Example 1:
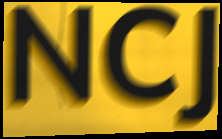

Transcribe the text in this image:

NCJ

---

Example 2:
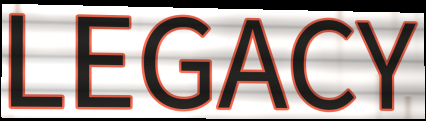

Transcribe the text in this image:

LEGACY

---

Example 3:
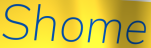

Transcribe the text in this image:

Shome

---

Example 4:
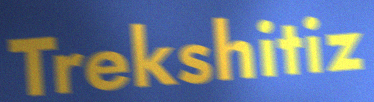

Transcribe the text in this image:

Trekshitiz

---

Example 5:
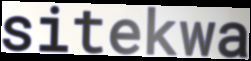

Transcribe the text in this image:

sitekwa